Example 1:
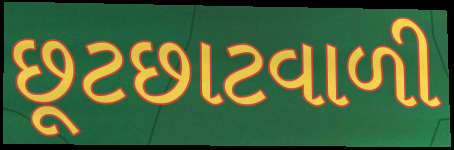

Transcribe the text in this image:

છૂટછાટવાળી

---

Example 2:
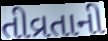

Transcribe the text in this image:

તીવ્રતાની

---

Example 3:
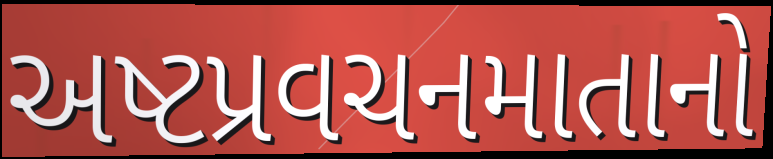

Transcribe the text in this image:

અષ્ટપ્રવચનમાતાનો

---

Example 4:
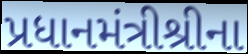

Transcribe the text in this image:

પ્રધાનમંત્રીશ્રીના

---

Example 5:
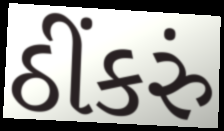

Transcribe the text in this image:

ઠીંકરું